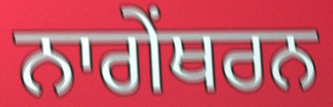
ਨਾਗੇਂਥਰਨ